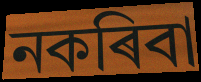
নকৰিবা